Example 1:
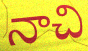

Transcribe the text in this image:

నాచి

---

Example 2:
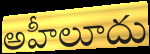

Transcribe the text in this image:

అహీలూదు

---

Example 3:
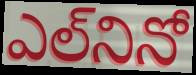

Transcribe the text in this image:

ఎల్‌నినో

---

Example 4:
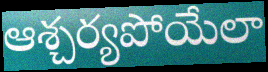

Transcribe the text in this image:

ఆశ్చర్యపోయేలా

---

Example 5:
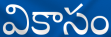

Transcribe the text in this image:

వికాసం